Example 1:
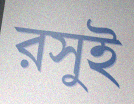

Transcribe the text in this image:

রসুই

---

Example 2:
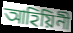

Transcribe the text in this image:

আহিয়িনী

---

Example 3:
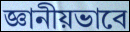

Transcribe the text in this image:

জ্ঞানীয়ভাবে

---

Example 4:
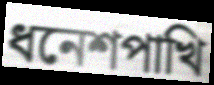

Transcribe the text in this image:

ধনেশপাখি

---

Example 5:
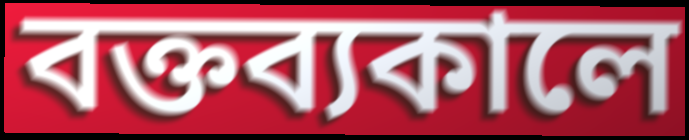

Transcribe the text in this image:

বক্তব্যকালে